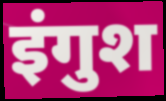
इंगुश